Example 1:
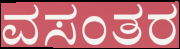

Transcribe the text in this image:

ವಸಂತರ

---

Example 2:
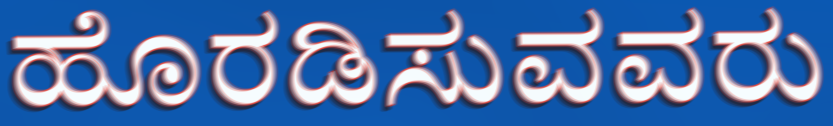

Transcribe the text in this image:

ಹೊರಡಿಸುವವರು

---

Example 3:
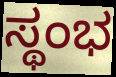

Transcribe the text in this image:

ಸ್ಥಂಭ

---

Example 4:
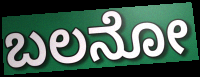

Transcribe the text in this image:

ಬಲನೋ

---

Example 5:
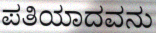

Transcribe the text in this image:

ಪತಿಯಾದವನು